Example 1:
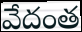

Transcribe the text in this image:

వేదంత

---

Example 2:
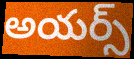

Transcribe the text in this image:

అయర్స్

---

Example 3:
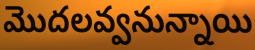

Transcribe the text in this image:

మొదలవ్వనున్నాయి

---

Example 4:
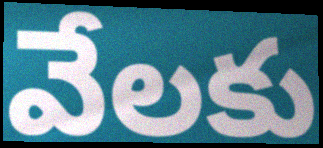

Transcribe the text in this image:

వేలకు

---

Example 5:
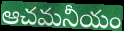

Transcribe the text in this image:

ఆచమనీయం